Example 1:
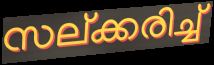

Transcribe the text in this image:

സല്ക്കരിച്ച്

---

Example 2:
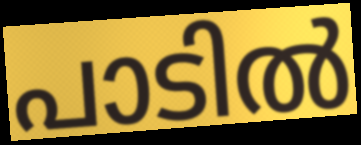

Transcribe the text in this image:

പാടിൽ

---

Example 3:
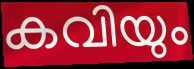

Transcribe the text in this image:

കവിയും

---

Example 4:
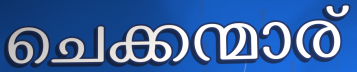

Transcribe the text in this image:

ചെക്കന്മാര്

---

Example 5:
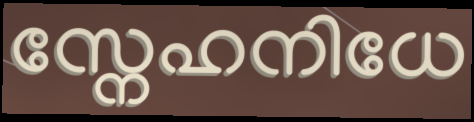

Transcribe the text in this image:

സ്നേഹനിധേ